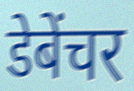
डेबेंचर